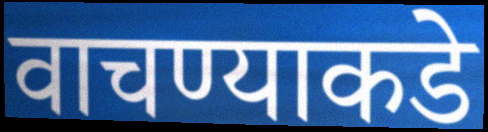
वाचण्याकडे